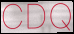
CDQ